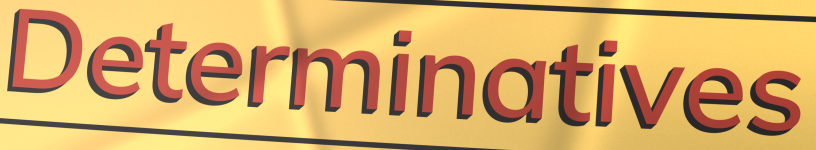
Determinatives